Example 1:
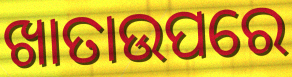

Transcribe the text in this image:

ଖାତାଉପରେ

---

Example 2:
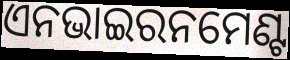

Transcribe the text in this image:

ଏନଭାଇରନମେଣ୍ଟ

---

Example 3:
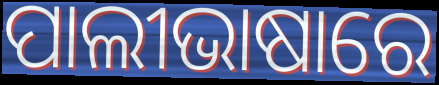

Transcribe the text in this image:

ପାଲୀଭାଷାରେ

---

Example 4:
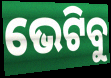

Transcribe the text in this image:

ଭେଟିବୁ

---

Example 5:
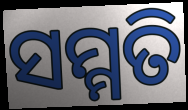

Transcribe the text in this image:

ସମ୍ମତି